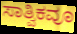
ಸಾತ್ವಿಕವೂ